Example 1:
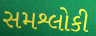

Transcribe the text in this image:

સમશ્લોકી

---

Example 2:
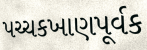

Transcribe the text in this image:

પચ્ચકખાણપૂર્વક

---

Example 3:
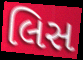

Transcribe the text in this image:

લિસ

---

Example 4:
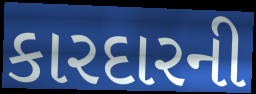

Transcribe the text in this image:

કારદારની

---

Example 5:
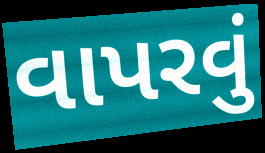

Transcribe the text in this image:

વાપરવું